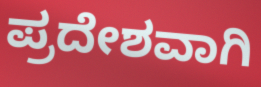
ಪ್ರದೇಶವಾಗಿ